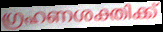
ഗ്രഹണശക്തിക്ക്